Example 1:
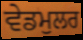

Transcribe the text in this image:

ਵੇਡਮੁਲਰ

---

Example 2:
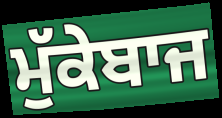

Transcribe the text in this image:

ਮੁੱਕੇਬਾਜ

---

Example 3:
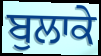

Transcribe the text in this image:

ਬੁਲਾਕੇ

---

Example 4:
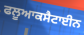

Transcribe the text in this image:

ਫਲੂਆਕਸੈਟਾਈਨ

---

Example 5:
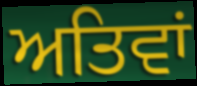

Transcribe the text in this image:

ਅਤਿਵਾਂ